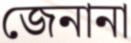
জেনানা